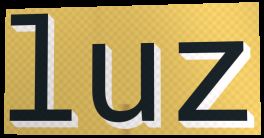
luz